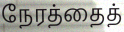
நேரத்தைத்